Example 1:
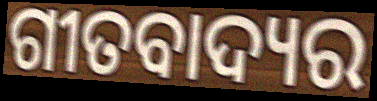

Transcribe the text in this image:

ଗୀତବାଦ୍ୟର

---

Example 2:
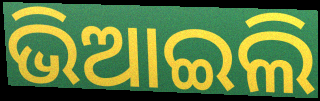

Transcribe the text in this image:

ଭିଆଇଲି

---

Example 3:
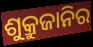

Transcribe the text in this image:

ଶୁକ୍ରୁଜାନିର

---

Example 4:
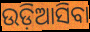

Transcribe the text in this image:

ଉଡ଼ିଆସିବା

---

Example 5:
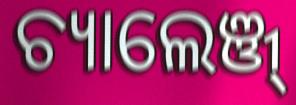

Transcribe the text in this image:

ଚ୍ୟାଲେଞ୍ଜ୍